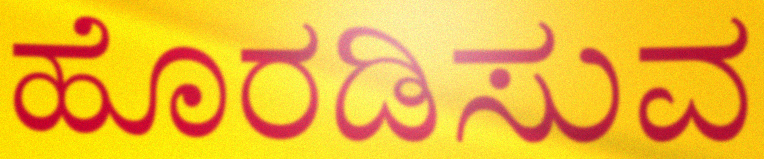
ಹೊರಡಿಸುವ